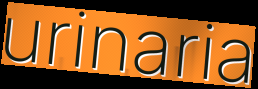
urinaria